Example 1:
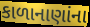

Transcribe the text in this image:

કાળાનાણાંના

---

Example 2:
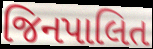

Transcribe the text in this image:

જિનપાલિત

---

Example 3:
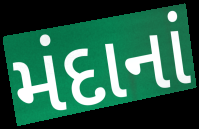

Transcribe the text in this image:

મંદાનાં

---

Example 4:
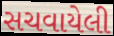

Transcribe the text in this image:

સચવાયેલી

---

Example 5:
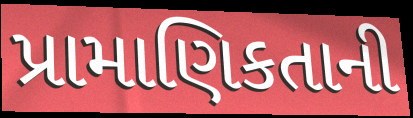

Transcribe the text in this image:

પ્રામાણિકતાની